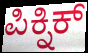
ಪಿಕ್ನಿಕ್